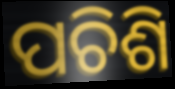
ପଚିଶି